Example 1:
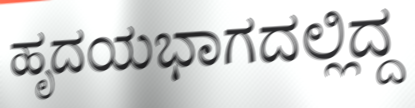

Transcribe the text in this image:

ಹೃದಯಭಾಗದಲ್ಲಿದ್ದ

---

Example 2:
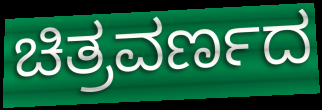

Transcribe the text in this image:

ಚಿತ್ರವರ್ಣದ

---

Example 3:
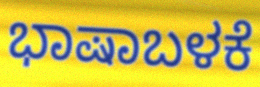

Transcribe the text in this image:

ಭಾಷಾಬಳಕೆ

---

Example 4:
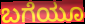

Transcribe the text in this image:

ಬಗೆಯೂ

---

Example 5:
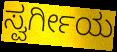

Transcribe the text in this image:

ಸ್ವರ್ಗೀಯ